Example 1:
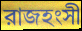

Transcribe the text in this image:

রাজহংসী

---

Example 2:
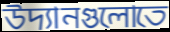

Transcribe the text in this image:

উদ্যানগুলোতে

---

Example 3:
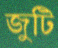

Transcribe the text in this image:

জুটি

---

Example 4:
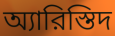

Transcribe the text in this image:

অ্যারিস্তিদ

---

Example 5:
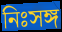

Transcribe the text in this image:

নিঃসঙ্গ